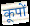
कूपों